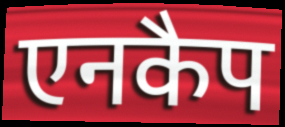
एनकैप